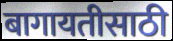
बागायतीसाठी